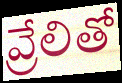
వ్రేలితో